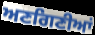
ਅਣਗਿਣੀਆਂ